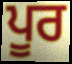
ਪੂਰ